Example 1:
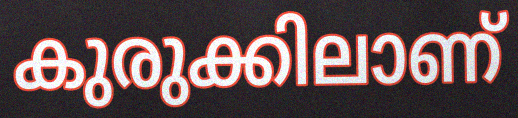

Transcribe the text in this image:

കുരുക്കിലാണ്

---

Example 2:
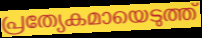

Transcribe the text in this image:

പ്രത്യേകമായെടുത്ത്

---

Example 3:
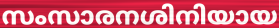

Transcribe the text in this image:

സംസാരനശിനിയായ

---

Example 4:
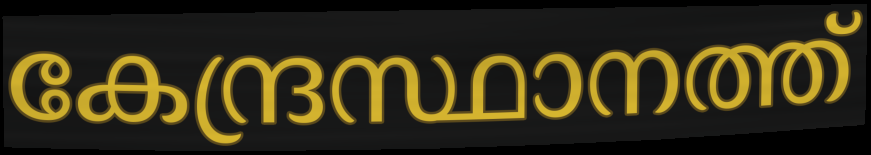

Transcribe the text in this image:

കേന്ദ്രസ്ഥാനത്ത്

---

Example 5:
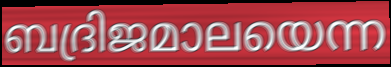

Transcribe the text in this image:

ബദ്രിജമാലയെന്ന